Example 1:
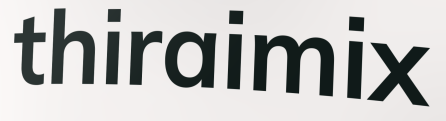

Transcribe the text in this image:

thiraimix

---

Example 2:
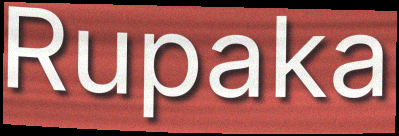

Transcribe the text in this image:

Rupaka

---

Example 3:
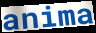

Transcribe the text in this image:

anima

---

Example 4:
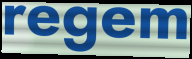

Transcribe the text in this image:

regem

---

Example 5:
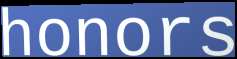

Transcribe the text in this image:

honors